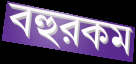
বহুরকম